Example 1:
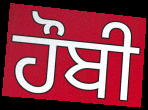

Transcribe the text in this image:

ਹੌਬੀ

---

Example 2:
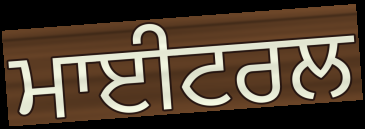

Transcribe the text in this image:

ਮਾਈਟਰਲ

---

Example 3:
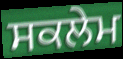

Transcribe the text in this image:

ਸਕਲੇਮ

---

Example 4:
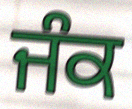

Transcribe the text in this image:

ਜੰਕ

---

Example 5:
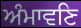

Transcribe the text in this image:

ਅੰਮਾਵਣਿ